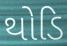
થોડિ